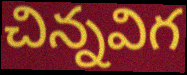
చిన్నవిగ